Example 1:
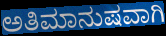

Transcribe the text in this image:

ಅತಿಮಾನುಷವಾಗಿ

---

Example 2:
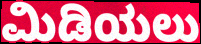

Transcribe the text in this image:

ಮಿಡಿಯಲು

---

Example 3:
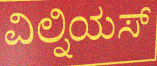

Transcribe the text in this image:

ವಿಲ್ನಿಯಸ್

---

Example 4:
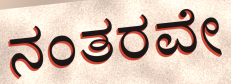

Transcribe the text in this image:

ನಂತರವೇ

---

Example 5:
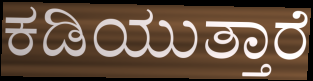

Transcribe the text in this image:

ಕಡಿಯುತ್ತಾರೆ